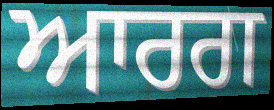
ਆਰਗ